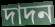
দাদন